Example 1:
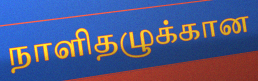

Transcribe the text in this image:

நாளிதழுக்கான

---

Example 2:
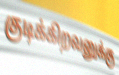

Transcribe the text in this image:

குடிக்கிறவனுக்கு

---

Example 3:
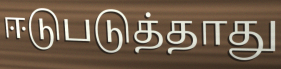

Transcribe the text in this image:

ஈடுபடுத்தாது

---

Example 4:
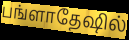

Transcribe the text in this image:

பங்ளாதேஷில்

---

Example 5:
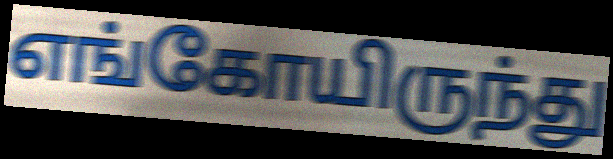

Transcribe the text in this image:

எங்கோயிருந்து